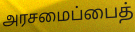
அரசமைப்பைத்